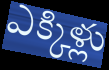
ఎక్కిళ్లు